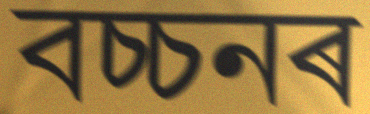
বচ্চনৰ